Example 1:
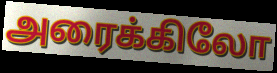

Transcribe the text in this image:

அரைக்கிலோ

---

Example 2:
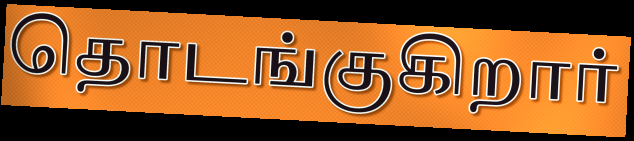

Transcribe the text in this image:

தொடங்குகிறார்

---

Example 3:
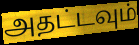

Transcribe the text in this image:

அதட்டவும்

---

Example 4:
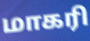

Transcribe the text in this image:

மாகரி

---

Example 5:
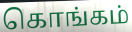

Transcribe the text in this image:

கொங்கம்